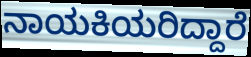
ನಾಯಕಿಯರಿದ್ದಾರೆ